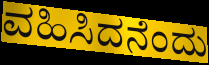
ವಹಿಸಿದನೆಂದು